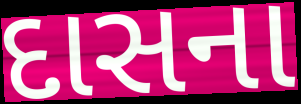
દાસના